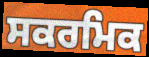
ਸਕਰਮਿਕ